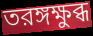
তরঙ্গক্ষুব্ধ